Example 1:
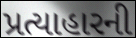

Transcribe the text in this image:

પ્રત્યાહારની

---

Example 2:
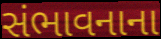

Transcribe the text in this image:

સંભાવનાના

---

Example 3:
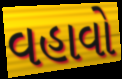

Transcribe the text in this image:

વહાવો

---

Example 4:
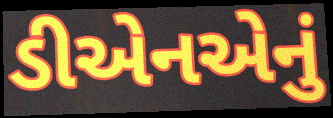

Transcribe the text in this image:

ડીએનએનું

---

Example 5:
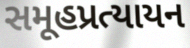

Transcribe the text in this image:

સમૂહપ્રત્યાયન